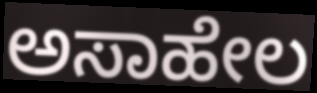
ಅಸಾಹೇಲ